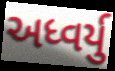
અધ્વર્યુ